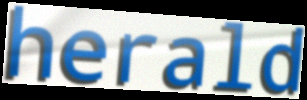
herald